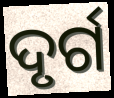
ଦୃର୍ଗ